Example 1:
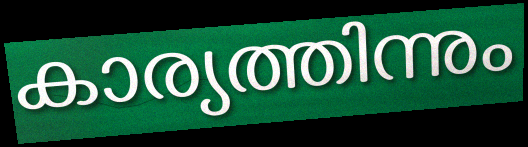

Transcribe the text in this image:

കാര്യത്തിന്നും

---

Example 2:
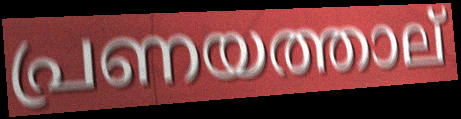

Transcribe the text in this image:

പ്രണയത്താല്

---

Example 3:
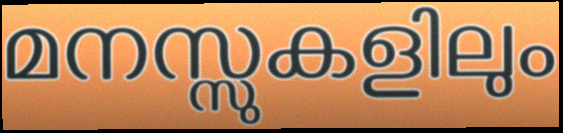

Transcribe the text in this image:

മനസ്സുകളിലും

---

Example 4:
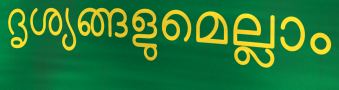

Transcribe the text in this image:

ദൃശ്യങ്ങളുമെല്ലാം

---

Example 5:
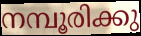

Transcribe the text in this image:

നമ്പൂരിക്കു